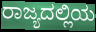
ರಾಜ್ಯದಲ್ಲಿಯ